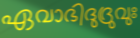
ഏവാഭിദുദ്രുവുഃ